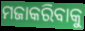
ମଜାକରିବାକୁ